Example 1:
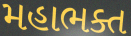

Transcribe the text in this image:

મહાભક્ત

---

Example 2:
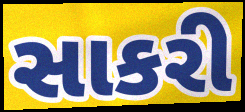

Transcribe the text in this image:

સાકરી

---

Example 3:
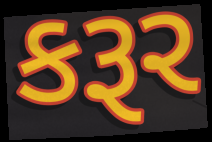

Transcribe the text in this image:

કરૂર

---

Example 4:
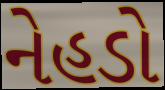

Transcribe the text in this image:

નેહડો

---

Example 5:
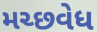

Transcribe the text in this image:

મચ્છવેધ